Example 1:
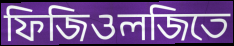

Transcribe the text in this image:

ফিজিওলজিতে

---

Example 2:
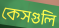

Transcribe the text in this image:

কেসগুলি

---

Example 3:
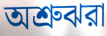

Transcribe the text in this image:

অশ্রুঝরা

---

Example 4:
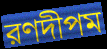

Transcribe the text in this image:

রণদীপম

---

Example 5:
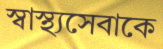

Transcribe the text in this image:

স্বাস্থ্যসেবাকে